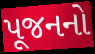
પૂજનનો